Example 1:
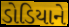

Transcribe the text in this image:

ડોડિયાને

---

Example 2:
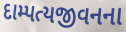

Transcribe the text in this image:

દામ્પત્યજીવનના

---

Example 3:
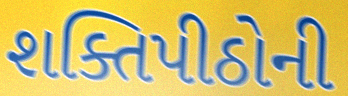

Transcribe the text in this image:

શક્તિપીઠોની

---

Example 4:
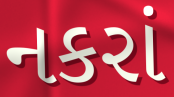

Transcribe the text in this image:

નકરાં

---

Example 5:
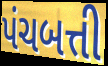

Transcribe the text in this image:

પંચબત્તી